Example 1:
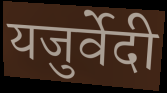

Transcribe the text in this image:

यजुर्वेदी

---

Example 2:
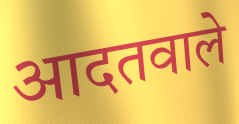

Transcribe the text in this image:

आदतवाले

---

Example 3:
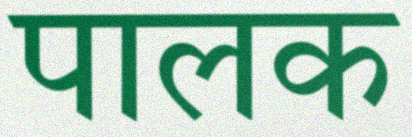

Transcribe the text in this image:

पालक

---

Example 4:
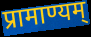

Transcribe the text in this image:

प्रामाण्यम्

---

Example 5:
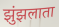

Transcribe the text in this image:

झुंझलाता